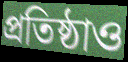
প্রতিষ্ঠাও